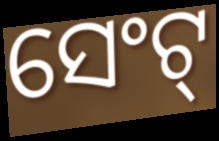
ସେଂଟ୍